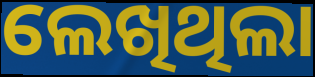
ଲେଖିଥିଲା